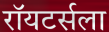
रॉयटर्सला